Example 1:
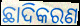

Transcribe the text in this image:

ଛାଦିକରଣ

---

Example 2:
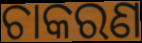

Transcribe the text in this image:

ଚାକରଣ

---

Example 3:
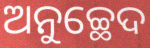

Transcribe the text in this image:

ଅନୁଚ୍ଛେଦ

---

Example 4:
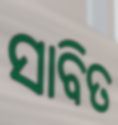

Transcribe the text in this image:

ସାବିତ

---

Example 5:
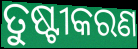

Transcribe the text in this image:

ତୁଷ୍ଟୀକରଣ